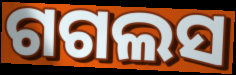
ଗଗଲସ